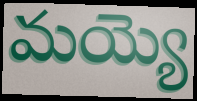
మయ్యె